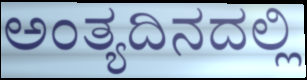
ಅಂತ್ಯದಿನದಲ್ಲಿ